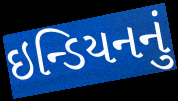
ઇન્ડિયનનું